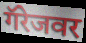
गॅरेजवर